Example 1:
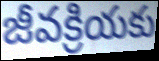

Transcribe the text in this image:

జీవక్రియకు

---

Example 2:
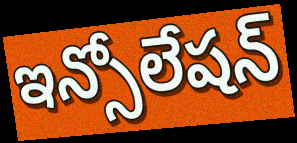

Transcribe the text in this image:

ఇన్సోలేషన్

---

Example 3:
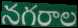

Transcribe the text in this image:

నగరాల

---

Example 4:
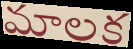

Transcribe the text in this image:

మాలక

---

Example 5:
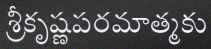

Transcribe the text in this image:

శ్రీకృష్ణపరమాత్మకు